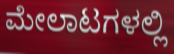
ಮೇಲಾಟಗಳಲ್ಲಿ